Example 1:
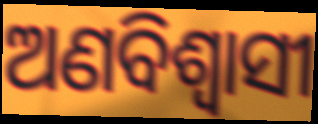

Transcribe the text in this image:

ଅଣବିଶ୍ୱାସୀ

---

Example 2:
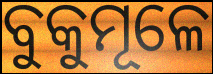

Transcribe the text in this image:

ବୁକୁମୂଳେ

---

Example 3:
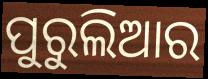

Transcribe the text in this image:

ପୁରୁଲିଆର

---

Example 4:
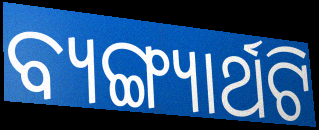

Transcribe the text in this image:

ବ୍ୟଙ୍ଗ୍ୟାର୍ଥଟି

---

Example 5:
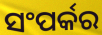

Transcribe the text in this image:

ସଂପର୍କର